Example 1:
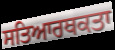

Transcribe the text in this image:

ਸਤਿਆਰਥਕਤਾ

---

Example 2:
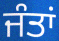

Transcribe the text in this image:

ਜੰਤਾਂ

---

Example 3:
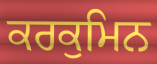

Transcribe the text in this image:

ਕਰਕੁਮਿਨ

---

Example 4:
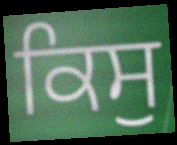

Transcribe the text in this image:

ਕਿਸੁ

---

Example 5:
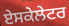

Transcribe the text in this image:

ਏਸਕੇਲੇਟਰ